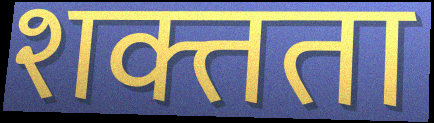
शक्तता